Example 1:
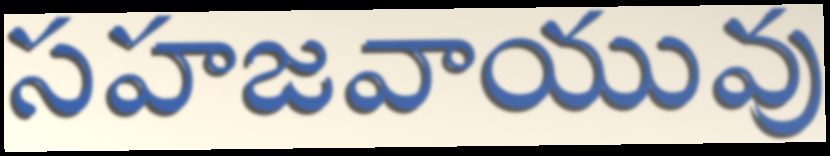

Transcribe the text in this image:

సహజవాయువు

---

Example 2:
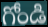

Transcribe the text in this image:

గోండి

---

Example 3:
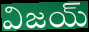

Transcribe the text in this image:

విజయ్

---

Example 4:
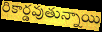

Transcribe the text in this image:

రికార్డవుతున్నాయి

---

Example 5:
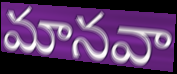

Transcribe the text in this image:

మానవా